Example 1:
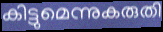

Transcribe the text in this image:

കിട്ടുമെന്നുകരുതി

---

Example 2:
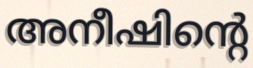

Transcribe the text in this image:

അനീഷിന്റെ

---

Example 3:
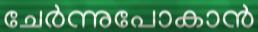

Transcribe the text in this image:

ചേർന്നുപോകാൻ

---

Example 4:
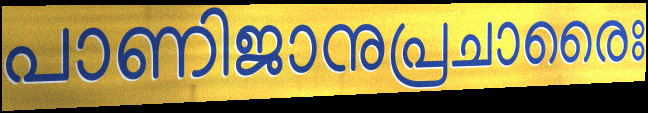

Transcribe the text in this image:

പാണിജാനുപ്രചാരൈഃ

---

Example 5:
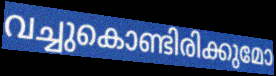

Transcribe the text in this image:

വച്ചുകൊണ്ടിരിക്കുമോ